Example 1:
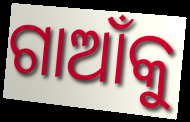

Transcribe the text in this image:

ଗାଆଁକୁ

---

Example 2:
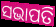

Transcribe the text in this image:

ସଭାପତି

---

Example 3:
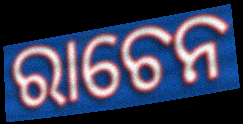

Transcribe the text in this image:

ରାଚେନ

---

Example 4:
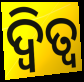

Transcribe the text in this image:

ଦ୍ୱିତ୍ୱ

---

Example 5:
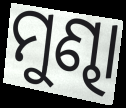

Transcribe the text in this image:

ମୁଣ୍ଢା